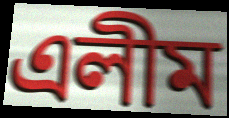
এলীম